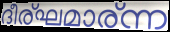
ദീര്ഘമാര്ന്ന